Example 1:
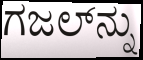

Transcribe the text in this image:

ಗಜಲ್‍ನ್ನು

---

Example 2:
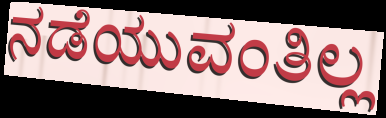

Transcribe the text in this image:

ನಡೆಯುವಂತಿಲ್ಲ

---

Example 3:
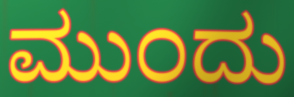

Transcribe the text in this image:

ಮುಂದು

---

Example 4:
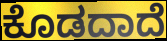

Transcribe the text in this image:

ಕೊಡದಾದೆ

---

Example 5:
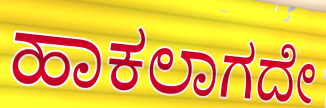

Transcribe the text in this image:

ಹಾಕಲಾಗದೇ